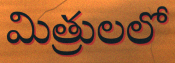
మిత్రులలో